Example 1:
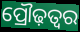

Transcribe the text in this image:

ପ୍ରୌଢ଼ତ୍ୱର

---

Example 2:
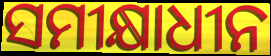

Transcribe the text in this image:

ସମୀକ୍ଷାଧୀନ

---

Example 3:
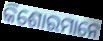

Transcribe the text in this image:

କିଶୋରମାନେ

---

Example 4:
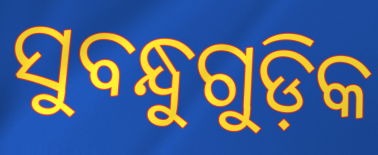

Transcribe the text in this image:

ସୁବନ୍ଧୁଗୁଡ଼ିକ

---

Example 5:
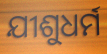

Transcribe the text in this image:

ଯୀଶୁଧର୍ମ